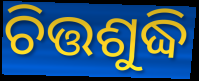
ଚିତ୍ତଶୁଦ୍ଧି